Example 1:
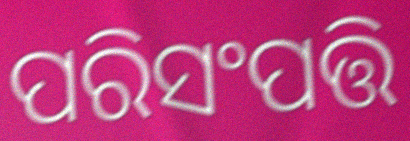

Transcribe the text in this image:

ପରିସଂପତ୍ତି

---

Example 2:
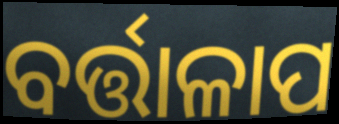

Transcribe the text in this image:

ବର୍ତ୍ତାଳାପ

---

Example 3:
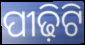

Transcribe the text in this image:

ପୀଢ଼ିଟି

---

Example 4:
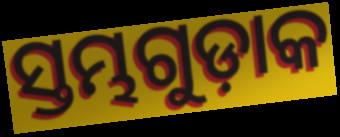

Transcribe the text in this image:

ସ୍ତମ୍ଭଗୁଡ଼ାକ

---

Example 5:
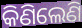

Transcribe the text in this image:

କିଣିଲେଣି